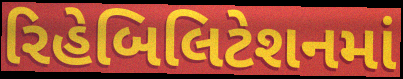
રિહેબિલિટેશનમાં